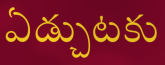
ఏడ్చుటకు